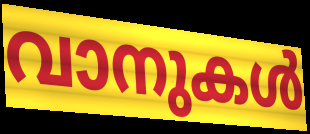
വാനുകൾ